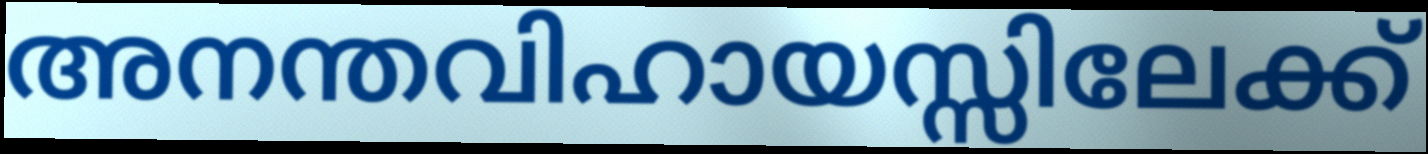
അനന്തവിഹായസ്സിലേക്ക്